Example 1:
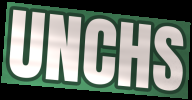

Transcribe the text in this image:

UNCHS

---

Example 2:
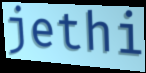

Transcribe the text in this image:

jethi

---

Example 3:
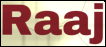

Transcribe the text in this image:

Raaj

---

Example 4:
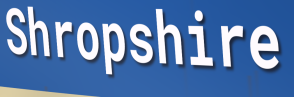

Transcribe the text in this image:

Shropshire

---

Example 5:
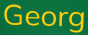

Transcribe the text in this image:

Georg